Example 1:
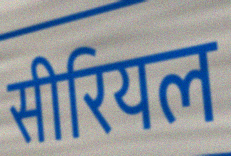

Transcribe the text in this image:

सीरियल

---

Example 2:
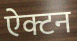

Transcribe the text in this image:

ऐक्टन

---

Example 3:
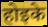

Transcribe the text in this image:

होइके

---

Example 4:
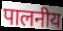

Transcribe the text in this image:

पालनीय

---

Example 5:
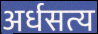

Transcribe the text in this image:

अर्धसत्य